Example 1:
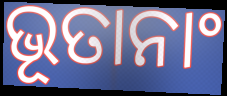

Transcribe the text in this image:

ଭୂତାନାଂ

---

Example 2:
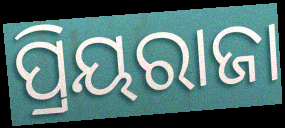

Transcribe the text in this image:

ପ୍ରିୟରାଜା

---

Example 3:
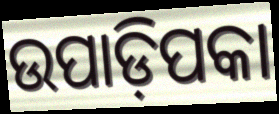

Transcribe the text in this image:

ଉପାଡ଼ିପକା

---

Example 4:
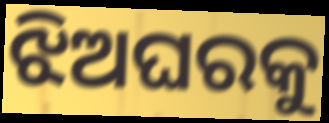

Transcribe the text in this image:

ଝିଅଘରକୁ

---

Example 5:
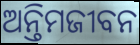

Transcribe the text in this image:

ଅନ୍ତିମଜୀବନ